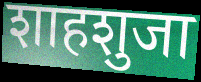
शाहशुजा